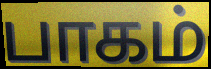
பாகம்